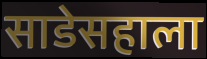
साडेसहाला